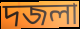
দজলা